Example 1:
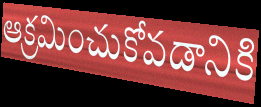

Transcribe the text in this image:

ఆక్రమించుకోవడానికి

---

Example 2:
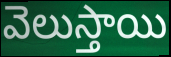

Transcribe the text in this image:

వెలుస్తాయి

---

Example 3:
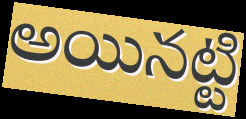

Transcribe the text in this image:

అయినట్టి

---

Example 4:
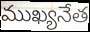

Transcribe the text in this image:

ముఖ్యనేత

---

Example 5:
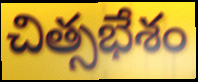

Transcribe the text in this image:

చిత్సభేశం